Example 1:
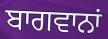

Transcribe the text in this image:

ਬਾਗਵਾਨਾਂ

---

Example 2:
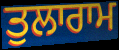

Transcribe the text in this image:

ਤੁਲਾਰਾਮ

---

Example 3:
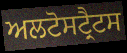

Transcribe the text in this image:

ਅਲਟੋਸਟ੍ਰੈਟਸ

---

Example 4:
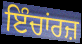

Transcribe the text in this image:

ਇੰਚਾਂਰਜ਼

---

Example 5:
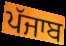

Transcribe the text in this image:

ਪੱਜਾਬ